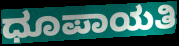
ಧೂಪಾಯತಿ